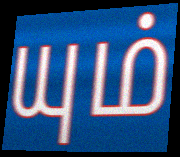
யும்